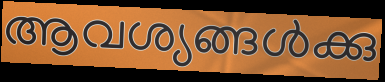
ആവശ്യങ്ങൾക്കു